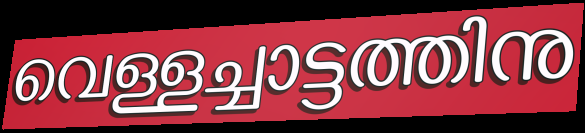
വെള്ളച്ചാട്ടത്തിനു